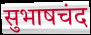
सुभाषचंद